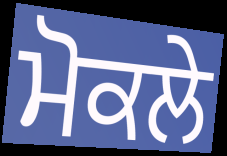
ਮੋਕਲੇ